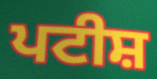
ਪਟੀਸ਼